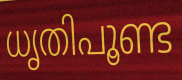
ധൃതിപൂണ്ട